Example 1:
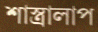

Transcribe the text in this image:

শাস্ত্রালাপ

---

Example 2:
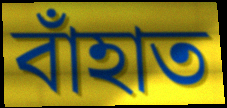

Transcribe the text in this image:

বাঁহাত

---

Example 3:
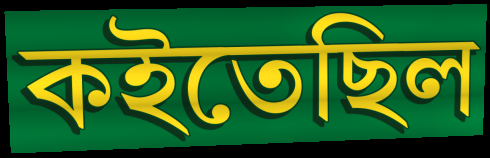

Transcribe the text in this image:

কইতেছিল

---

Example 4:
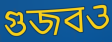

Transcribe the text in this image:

গুজবও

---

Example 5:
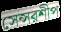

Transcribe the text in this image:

সেন্সরশীপ